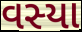
વસ્યા